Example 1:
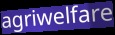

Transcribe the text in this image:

agriwelfare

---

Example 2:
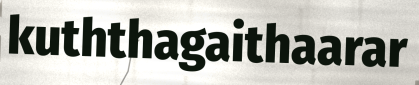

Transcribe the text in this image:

kuththagaithaarar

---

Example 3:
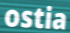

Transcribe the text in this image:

ostia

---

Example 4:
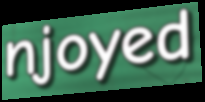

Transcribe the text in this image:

njoyed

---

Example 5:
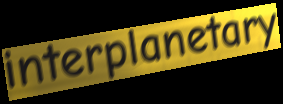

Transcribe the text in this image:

interplanetary